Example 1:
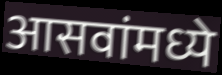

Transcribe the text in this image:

आसवांमध्ये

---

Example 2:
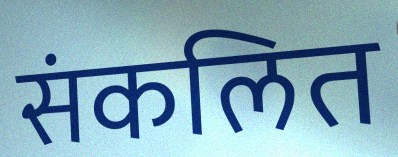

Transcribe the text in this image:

संकलित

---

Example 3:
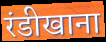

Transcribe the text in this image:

रंडीखाना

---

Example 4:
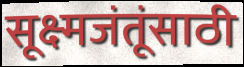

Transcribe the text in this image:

सूक्ष्मजंतूंसाठी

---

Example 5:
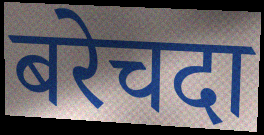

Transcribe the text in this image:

बरेचदा